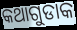
କଥାଗୁଡାକ